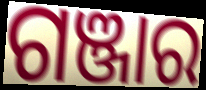
ଗଞ୍ଜାର